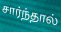
சார்ந்தால்